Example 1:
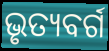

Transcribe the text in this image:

ଭୃତ୍ୟବର୍ଗ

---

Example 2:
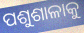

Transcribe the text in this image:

ପଶୁଶାଳାକୁ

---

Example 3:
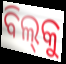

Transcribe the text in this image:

ବିଲ୍‌କୁ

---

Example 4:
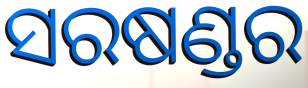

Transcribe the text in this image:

ସରଷଣ୍ଡର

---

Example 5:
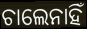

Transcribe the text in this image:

ଚାଲେନାହିଁ